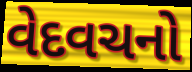
વેદવચનો